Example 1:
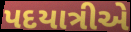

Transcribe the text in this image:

પદયાત્રીએ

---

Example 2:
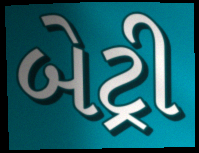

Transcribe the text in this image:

બેટ્રી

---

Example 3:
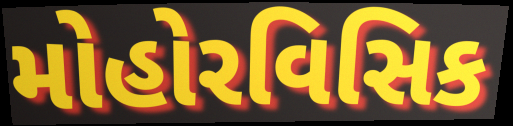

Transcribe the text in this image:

મોહોરવિસિક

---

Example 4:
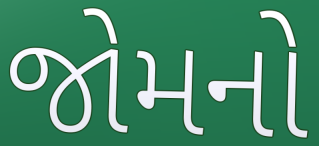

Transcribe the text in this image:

જોમનો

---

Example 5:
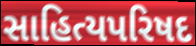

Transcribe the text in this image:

સાહિત્યપરિષદ